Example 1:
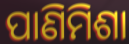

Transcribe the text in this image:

ପାଣିମିଶା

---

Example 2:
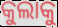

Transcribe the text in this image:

କୁଲାକୁ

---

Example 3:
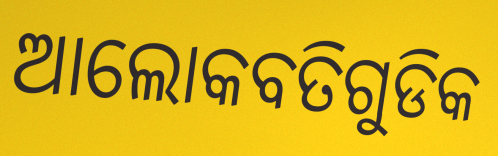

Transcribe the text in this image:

ଆଲୋକବତିଗୁଡିକ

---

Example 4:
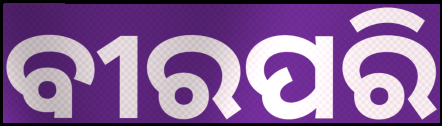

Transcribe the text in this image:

ବୀରପରି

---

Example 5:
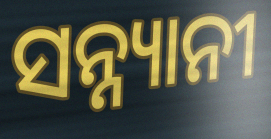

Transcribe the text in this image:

ସନ୍ନ୍ୟାନୀ